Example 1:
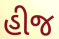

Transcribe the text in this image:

હીજ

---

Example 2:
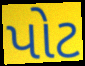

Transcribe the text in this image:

પોટ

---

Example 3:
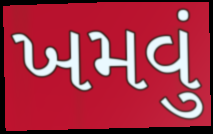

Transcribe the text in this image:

ખમવું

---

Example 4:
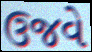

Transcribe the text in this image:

ઉજવે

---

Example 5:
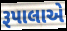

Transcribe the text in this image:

રૂપાલાએ